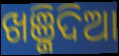
ଖଞ୍ଜିଦିଆ